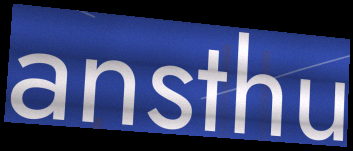
ansthu